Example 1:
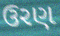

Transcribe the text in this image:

ઉરણ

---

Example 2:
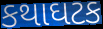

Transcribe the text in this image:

કથાઘટક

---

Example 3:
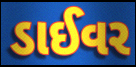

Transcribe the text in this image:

ડાઈવર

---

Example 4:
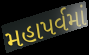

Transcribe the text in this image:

મહાપર્વમાં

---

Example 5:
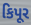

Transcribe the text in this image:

કિપૂર